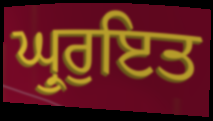
ਘ੍ਰੁਰੁਇਤ